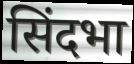
सिंदभा